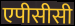
एपीसीसी